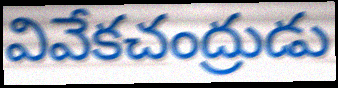
వివేకచంద్రుడు